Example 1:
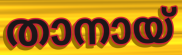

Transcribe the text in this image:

താനായ്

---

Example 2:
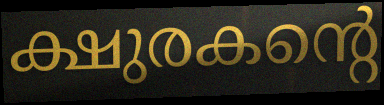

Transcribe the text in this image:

ക്ഷുരകന്റെ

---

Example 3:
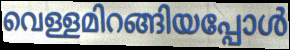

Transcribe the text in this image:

വെള്ളമിറങ്ങിയപ്പോൾ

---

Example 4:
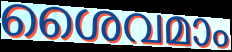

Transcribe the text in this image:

ശൈവമാം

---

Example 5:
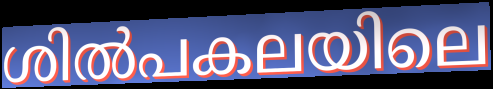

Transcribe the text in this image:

ശിൽപകലയിലെ